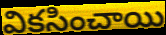
వికసించాయి